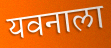
यवनाला